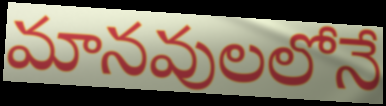
మానవులలోనే